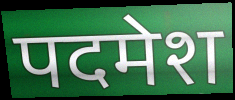
पदमेश